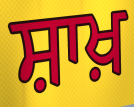
ਸ਼ਾਖ਼